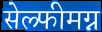
सेल्फीमग्न